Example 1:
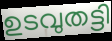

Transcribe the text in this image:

ഉടവുതട്ടി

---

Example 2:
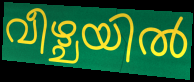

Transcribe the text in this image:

വീഴ്ചയിൽ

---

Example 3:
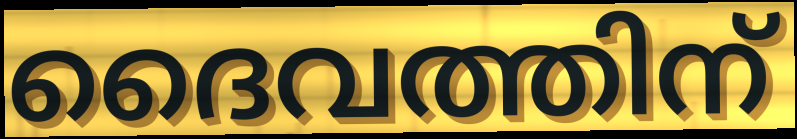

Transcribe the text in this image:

ദൈവത്തിന്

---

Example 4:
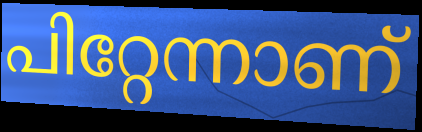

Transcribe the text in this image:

പിറ്റേന്നാണ്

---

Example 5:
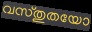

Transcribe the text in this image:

വസ്തുതയോ